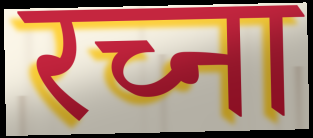
रच्ना